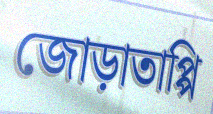
জোড়াতাপ্পি